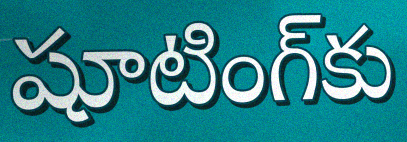
షూటింగ్‌కు